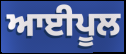
ਆਈਪੂਲ